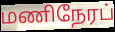
மணிநேரப்